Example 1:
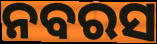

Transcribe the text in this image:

ନବରସ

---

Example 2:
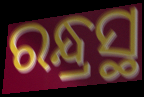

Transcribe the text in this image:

ରନ୍ଧ୍ରସ୍ଥ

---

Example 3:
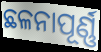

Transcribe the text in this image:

ଛଳନାପୂର୍ଣ୍ଣ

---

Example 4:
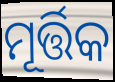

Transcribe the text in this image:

ମୂର୍ତ୍ତିକ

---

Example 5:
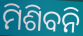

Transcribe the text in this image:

ମିଶିବନି